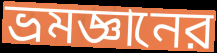
ভ্রমজ্ঞানের